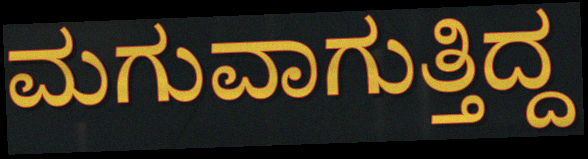
ಮಗುವಾಗುತ್ತಿದ್ದ